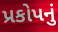
પ્રકોપનું